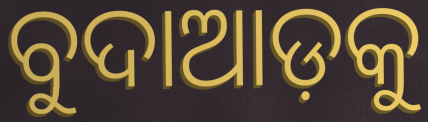
ବୁଦାଆଡ଼କୁ